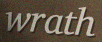
wrath